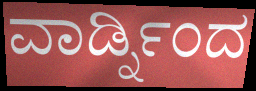
ವಾರ್ಡ್ನಿಂದ